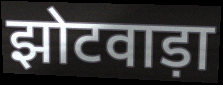
झोटवाड़ा